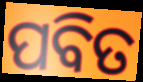
ପବିତ